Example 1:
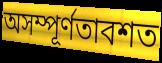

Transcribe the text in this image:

অসম্পূর্ণতাবশত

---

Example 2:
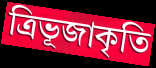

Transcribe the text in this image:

ত্রিভূজাকৃতি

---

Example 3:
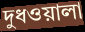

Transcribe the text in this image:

দুধওয়ালা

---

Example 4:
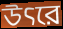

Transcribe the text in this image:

উৎরে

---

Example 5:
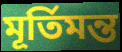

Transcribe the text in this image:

মূর্তিমন্ত